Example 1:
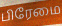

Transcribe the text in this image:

பிரேமை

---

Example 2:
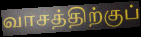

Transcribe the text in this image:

வாசத்திற்குப்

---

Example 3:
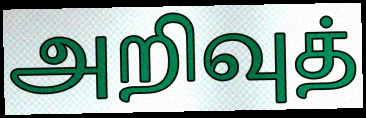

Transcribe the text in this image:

அறிவுத்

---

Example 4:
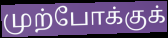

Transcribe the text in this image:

முற்போக்குக்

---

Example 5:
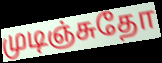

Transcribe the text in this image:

முடிஞ்சுதோ